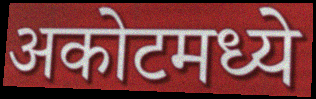
अकोटमध्ये